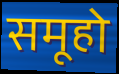
समूहो